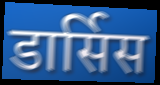
डार्सिस